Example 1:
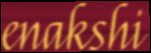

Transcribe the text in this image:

enakshi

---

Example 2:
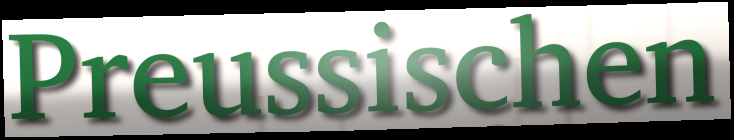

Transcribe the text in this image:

Preussischen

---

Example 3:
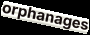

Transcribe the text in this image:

orphanages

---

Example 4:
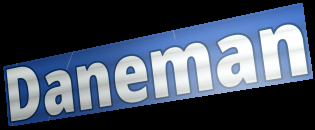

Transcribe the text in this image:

Daneman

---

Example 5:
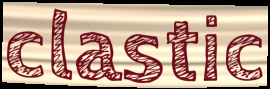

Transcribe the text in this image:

clastic